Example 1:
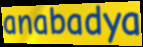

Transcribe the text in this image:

anabadya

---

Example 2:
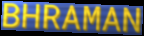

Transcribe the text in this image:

BHRAMAN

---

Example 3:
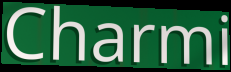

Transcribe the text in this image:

Charmi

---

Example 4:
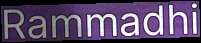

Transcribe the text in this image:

Rammadhi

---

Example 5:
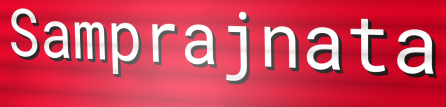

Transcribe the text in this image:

Samprajnata